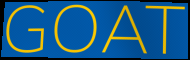
GOAT